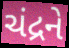
ચંદ્રને